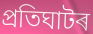
প্ৰতিঘাটৰ